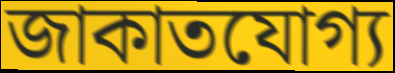
জাকাতযোগ্য